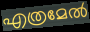
എത്രമേൽ